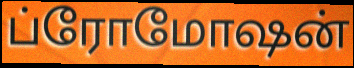
ப்ரோமோஷன்